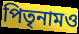
পিতৃনামও